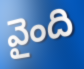
వైంది